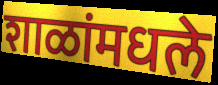
शाळांमधले